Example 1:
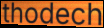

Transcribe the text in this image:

thodech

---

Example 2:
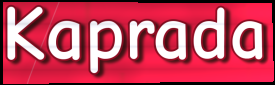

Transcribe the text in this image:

Kaprada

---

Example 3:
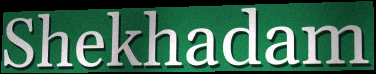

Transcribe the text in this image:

Shekhadam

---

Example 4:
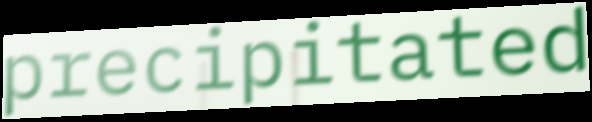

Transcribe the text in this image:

precipitated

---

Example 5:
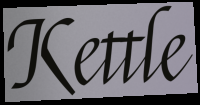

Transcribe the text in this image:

Kettle